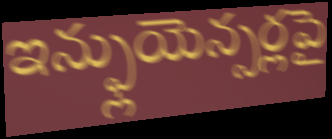
ఇన్ఫ్లుయెన్సర్లపై